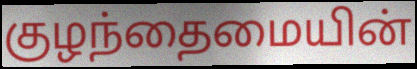
குழந்தைமையின்